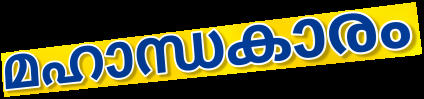
മഹാന്ധകാരം